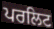
ਪਰਲਿਟ